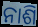
ନାଶି